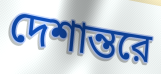
দেশান্তরে